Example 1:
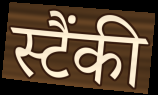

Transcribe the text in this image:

स्टैंकी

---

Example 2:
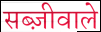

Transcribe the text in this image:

सब्ज़ीवाले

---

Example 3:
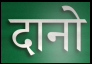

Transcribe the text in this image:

दानो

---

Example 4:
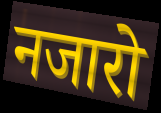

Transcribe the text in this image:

नजारो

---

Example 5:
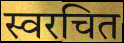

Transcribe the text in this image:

स्वरचित